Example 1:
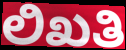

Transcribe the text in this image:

ಲಿಖತಿ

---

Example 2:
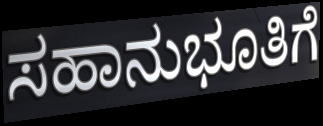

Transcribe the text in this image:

ಸಹಾನುಭೂತಿಗೆ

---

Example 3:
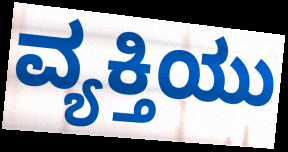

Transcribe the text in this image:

ವ್ಯಕ್ತಿಯು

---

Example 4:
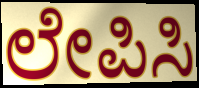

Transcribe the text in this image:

ಲೇಪಿಸಿ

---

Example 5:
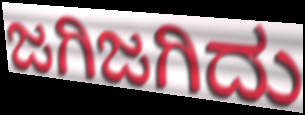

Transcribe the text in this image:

ಜಗಿಜಗಿದು